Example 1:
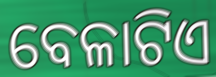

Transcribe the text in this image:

ବେଳାଟିଏ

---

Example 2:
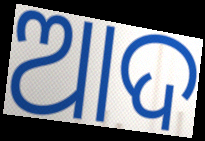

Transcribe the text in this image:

ଆଦ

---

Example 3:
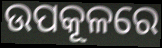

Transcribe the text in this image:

ଉପକୂଳରେ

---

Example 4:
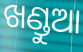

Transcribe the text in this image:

ଖଣ୍ଡୁଆ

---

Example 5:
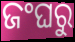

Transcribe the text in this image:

ଜଂଘରୁ